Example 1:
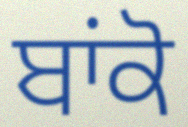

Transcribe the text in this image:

ਬਾਂਕੋ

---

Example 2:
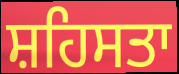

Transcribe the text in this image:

ਸ਼ਹਿਸਤਾ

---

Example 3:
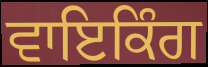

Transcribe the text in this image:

ਵਾਇਕਿੰਗ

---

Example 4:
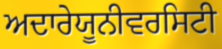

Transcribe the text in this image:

ਅਦਾਰੇਯੂਨੀਵਰਸਿਟੀ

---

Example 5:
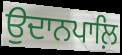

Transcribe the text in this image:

ਉਦਾਨਪਾਲ਼ਿ